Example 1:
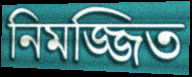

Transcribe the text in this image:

নিমজ্জিত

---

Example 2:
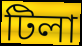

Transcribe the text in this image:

টিলা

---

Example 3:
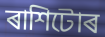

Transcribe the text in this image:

ৰাশিটোৰ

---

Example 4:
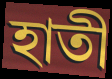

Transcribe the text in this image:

হাতী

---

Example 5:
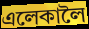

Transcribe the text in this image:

এলেকালৈ